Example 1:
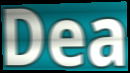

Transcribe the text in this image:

Dea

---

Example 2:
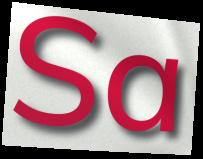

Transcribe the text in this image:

Sa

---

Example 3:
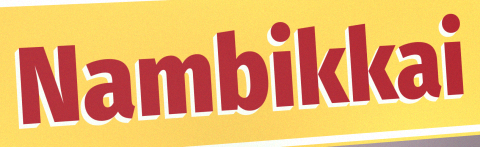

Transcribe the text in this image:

Nambikkai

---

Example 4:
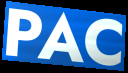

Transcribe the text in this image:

PAC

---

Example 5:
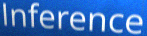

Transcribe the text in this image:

Inference